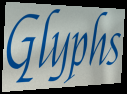
Glyphs